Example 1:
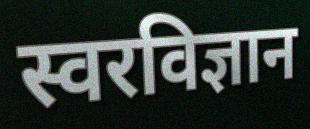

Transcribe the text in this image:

स्वरविज्ञान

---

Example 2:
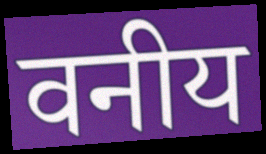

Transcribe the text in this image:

वनीय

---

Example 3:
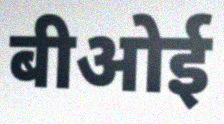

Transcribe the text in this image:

बीओई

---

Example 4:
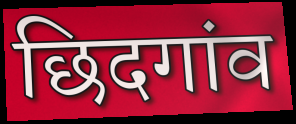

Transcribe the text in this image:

छिदगांव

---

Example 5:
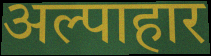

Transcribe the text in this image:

अल्पाहार